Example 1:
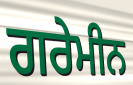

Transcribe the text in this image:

ਗਰੇਮੀਨ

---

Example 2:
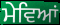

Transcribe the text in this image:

ਮੇਵਿਆਂ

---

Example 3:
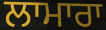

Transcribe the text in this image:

ਲਾਮਾਰਾ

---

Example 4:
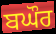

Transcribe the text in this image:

ਬਘੌਰ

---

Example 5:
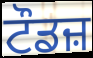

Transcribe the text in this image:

ਟੌਡਜ਼